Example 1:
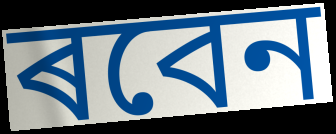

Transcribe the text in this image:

ৰবেন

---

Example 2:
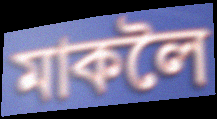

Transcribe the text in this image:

মাকলৈ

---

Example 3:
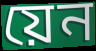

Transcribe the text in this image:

য়েন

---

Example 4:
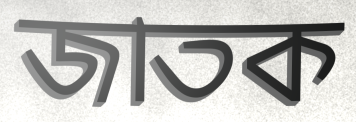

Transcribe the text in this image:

জাতক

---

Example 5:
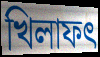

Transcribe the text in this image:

খিলাফৎ